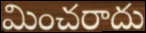
మించరాదు